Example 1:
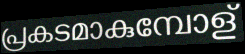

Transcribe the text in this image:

പ്രകടമാകുമ്പോള്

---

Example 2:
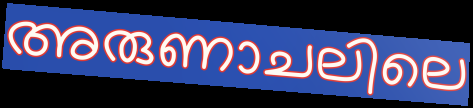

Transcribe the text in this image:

അരുണാചലിലെ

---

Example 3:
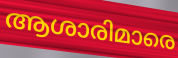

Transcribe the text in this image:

ആശാരിമാരെ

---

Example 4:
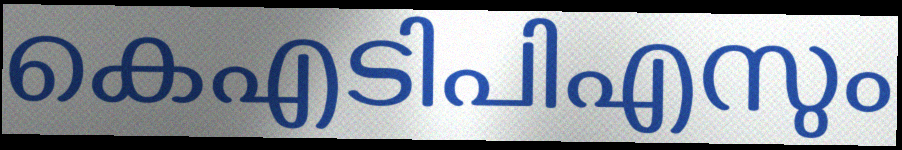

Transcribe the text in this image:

കെഎടിപിഎസും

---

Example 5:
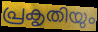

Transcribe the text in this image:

പ്രകൃതിയും